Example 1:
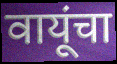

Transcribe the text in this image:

वायूंचा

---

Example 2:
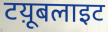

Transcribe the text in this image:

टय़ूबलाइट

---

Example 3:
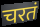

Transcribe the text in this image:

चरतं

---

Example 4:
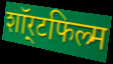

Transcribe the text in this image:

शॉर्टफिल्म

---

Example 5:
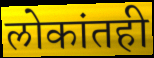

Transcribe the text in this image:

लोकांतही